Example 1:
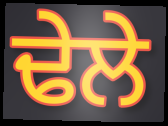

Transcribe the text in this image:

ਢੇਲੇ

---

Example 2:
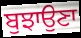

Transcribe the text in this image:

ਬੁਝਾਉਣਾ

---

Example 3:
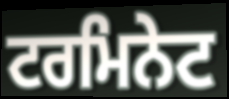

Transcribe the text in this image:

ਟਰਮਿਨੇਟ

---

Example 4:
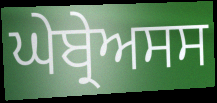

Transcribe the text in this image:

ਘੇਬ੍ਰੇਅਸਸ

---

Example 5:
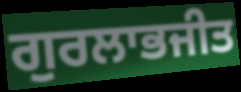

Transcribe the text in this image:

ਗੁਰਲਾਭਜੀਤ